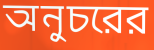
অনুচরের